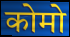
कोमो